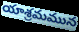
యాశ్రమమున